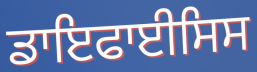
ਡਾਇਫਾਈਸਿਸ